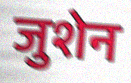
जुशेन